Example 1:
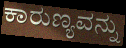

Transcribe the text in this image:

ಕಾರುಣ್ಯವನ್ನು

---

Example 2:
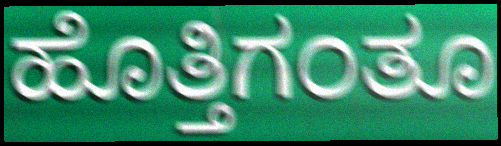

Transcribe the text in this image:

ಹೊತ್ತಿಗಂತೂ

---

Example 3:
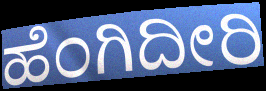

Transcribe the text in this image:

ಹೆಂಗಿದೀರಿ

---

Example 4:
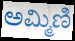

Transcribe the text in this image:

ಅಮ್ಮಿಣಿ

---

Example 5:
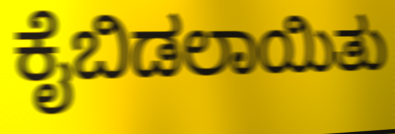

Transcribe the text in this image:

ಕೈಬಿಡಲಾಯಿತು